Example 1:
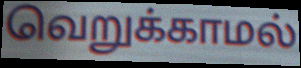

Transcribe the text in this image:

வெறுக்காமல்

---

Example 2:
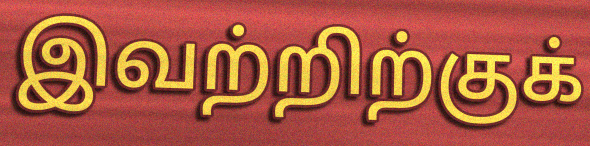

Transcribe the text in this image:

இவற்றிற்குக்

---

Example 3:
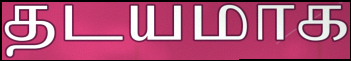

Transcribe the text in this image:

தடயமாக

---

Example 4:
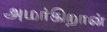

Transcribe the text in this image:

அமர்கிறான்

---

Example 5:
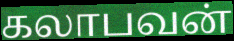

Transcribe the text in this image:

கலாபவன்